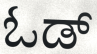
ಓಡ್